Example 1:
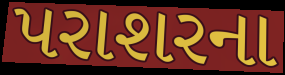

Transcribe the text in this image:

પરાશરના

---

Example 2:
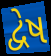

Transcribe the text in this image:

દ્વેષ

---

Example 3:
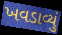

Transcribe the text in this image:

ખવડાવ્યું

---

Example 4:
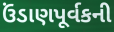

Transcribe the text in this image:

ઉંડાણપૂર્વકની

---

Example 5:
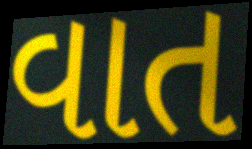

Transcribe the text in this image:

વાત